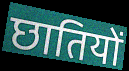
छातियों